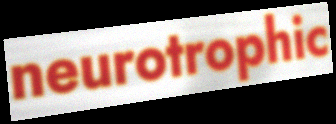
neurotrophic